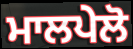
ਮਾਲਪੇਲੋ